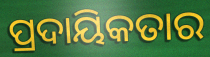
ପ୍ରଦାୟିକତାର